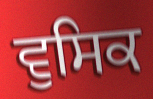
ਵੁਸਿਕ